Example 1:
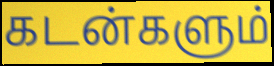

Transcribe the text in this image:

கடன்களும்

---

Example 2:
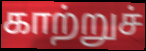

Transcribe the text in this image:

காற்றுச்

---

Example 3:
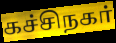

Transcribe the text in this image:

கச்சிநகர்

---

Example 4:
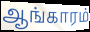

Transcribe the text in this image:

ஆங்காரம்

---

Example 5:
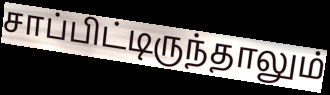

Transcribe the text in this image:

சாப்பிட்டிருந்தாலும்